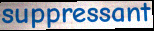
suppressant